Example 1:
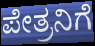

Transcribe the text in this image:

ಪೇತ್ರನಿಗೆ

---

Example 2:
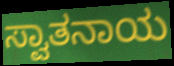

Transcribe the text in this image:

ಸ್ವಾತನಾಯ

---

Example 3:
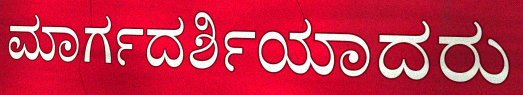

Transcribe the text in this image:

ಮಾರ್ಗದರ್ಶಿಯಾದರು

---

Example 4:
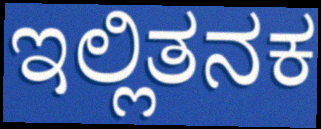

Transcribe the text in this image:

ಇಲ್ಲಿತನಕ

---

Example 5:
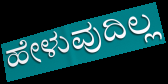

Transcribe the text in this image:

ಹೇಳುವುದಿಲ್ಲ